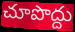
చూపొద్దు